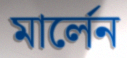
মার্লেন